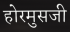
होरमुसजी